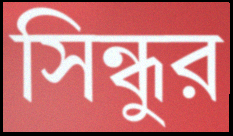
সিন্ধুর